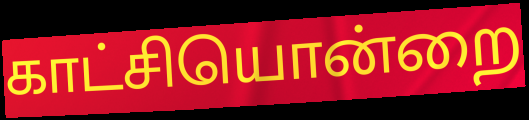
காட்சியொன்றை